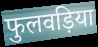
फुलवड़िया